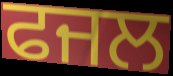
ਫਜਲ